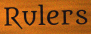
Rulers